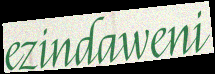
ezindaweni